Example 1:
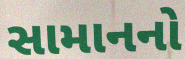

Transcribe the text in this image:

સામાનનો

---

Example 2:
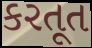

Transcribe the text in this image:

કરતૂત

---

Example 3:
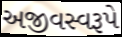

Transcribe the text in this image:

અજીવસ્વરૂપે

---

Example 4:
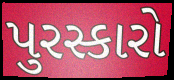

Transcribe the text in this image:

પુરસ્કારો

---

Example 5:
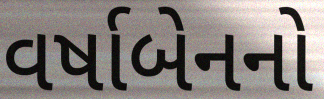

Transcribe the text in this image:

વર્ષાબેનનો